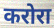
करोरा